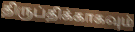
திருப்திக்காகவும்